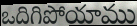
ఒదిగిపోయాము